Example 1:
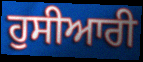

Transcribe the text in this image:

ਹੁਸੀਆਰੀ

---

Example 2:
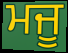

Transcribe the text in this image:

ਮਜੂ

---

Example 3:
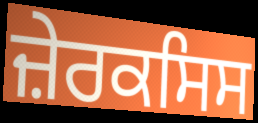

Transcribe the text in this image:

ਜ਼ੇਰਕਸਿਸ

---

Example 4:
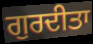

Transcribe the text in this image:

ਗੁਰਦੀਤਾ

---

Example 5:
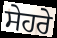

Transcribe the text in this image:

ਸੇਹਰੇ